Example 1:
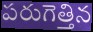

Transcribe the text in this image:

పరుగెత్తిన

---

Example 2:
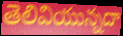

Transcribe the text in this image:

తెలివియున్నదా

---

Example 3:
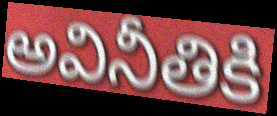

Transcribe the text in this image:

అవినీతికి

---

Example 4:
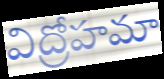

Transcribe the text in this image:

విద్రోహమా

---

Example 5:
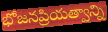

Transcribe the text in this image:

భోజనప్రియత్వాన్ని